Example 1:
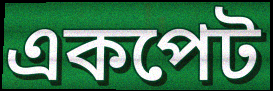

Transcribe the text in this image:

একপেট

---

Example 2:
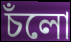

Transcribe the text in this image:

চঁলো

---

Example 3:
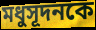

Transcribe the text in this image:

মধুসূদনকে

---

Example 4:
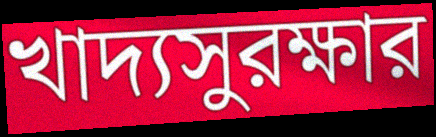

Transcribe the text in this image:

খাদ্যসুরক্ষার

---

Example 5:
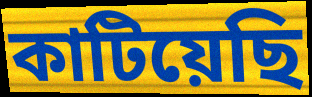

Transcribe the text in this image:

কাটিয়েছি